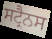
ਸਟ੍ਰੈਨਸ